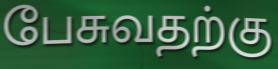
பேசுவதற்கு